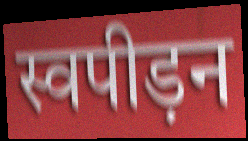
स्वपीड़न